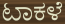
ಟಾಕಳೆ